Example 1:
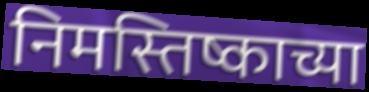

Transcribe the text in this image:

निमस्तिष्काच्या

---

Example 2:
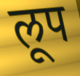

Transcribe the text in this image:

लूप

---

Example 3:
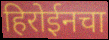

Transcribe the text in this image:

हिरोईनचा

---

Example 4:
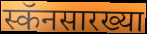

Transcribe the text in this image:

स्कॅनसारख्या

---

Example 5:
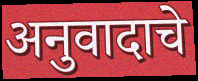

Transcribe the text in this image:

अनुवादाचे